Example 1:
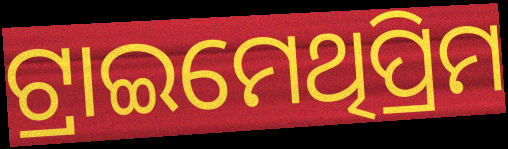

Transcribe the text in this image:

ଟ୍ରାଇମେଥିପ୍ରିମ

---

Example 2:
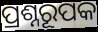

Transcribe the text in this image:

ପ୍ରଶ୍ନରୂପକ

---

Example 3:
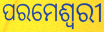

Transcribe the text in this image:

ପରମେଶ୍ୱରୀ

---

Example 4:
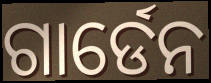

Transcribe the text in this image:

ଗାର୍ଡେନ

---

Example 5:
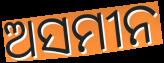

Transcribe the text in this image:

ଅସମୀନ